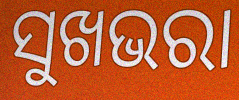
ସୁଖଭରା